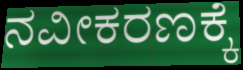
ನವೀಕರಣಕ್ಕೆ